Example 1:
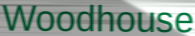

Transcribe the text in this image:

Woodhouse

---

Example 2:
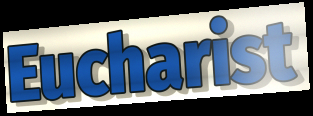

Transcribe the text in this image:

Eucharist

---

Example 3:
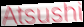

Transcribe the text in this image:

Atsushi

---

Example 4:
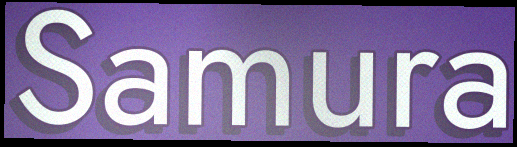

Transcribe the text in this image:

Samura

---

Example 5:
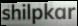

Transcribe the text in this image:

shilpkar